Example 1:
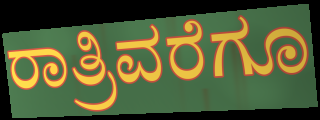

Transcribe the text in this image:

ರಾತ್ರಿವರೆಗೂ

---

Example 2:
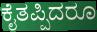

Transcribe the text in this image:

ಕೈತಪ್ಪಿದರೂ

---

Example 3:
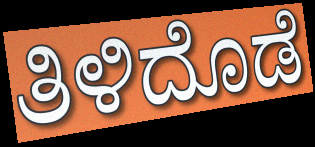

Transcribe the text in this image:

ತಿಳಿದೊಡೆ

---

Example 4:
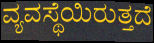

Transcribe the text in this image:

ವ್ಯವಸ್ಥೆಯಿರುತ್ತದೆ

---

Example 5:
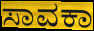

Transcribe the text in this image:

ಸಾವಕಾ